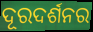
ଦୂରଦର୍ଶନର